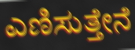
ಎಣಿಸುತ್ತೇನೆ